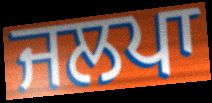
ਜਲਪਾ